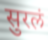
सुरलं